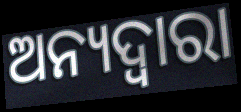
ଅନ୍ୟଦ୍ଵାରା